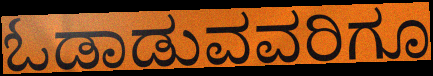
ಓಡಾಡುವವರಿಗೂ